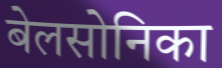
बेलसोनिका